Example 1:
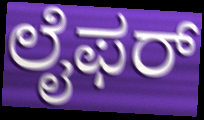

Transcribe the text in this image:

ಲೈಫರ್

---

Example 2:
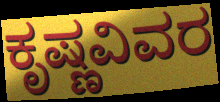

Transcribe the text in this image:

ಕೃಷ್ಣವಿವರ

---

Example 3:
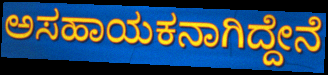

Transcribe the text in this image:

ಅಸಹಾಯಕನಾಗಿದ್ದೇನೆ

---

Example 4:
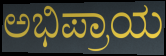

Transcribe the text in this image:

ಅಭಿಪ್ರಾಯ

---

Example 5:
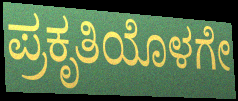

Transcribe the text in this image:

ಪ್ರಕೃತಿಯೊಳಗೇ